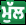
ਮੁੱਲ